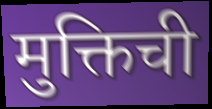
मुक्तिची